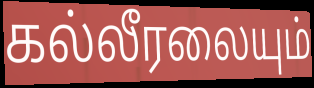
கல்லீரலையும்